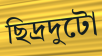
ছিদ্রদুটো